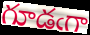
గూడఁగా